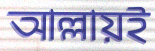
আল্লায়ই